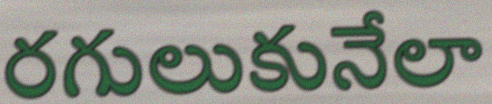
రగులుకునేలా